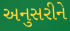
અનુસરીને